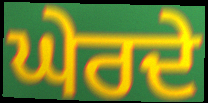
ਘੇਰਦੇ